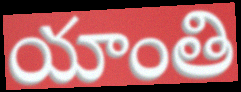
యాంతి